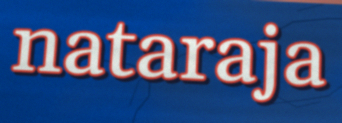
nataraja